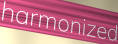
harmonized